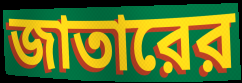
জাতারের